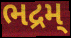
ભદ્રમ્